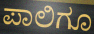
ಪಾಲಿಗೂ